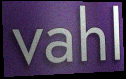
vahl